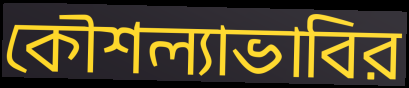
কৌশল্যাভাবির